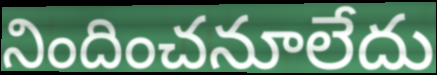
నిందించనూలేదు